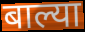
बाल्या